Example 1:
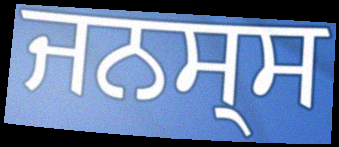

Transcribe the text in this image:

ਜਨਸ੍ਸ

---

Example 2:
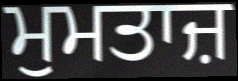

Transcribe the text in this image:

ਮੁਮਤਾਜ਼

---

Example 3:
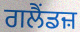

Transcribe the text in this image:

ਗਲੈਂਡਜ਼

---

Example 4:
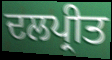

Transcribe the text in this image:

ਦਲਪ੍ਰੀਤ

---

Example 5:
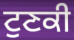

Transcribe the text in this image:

ਟੁਣਕੀ